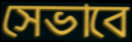
সেভাবে